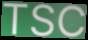
TSC